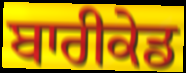
ਬਾਰੀਕੇਡ